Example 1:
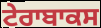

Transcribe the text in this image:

ਟੇਰਾਬਾਕਸ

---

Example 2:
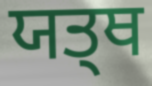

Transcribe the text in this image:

ਯਤ੍ਥ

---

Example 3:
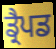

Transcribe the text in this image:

ਡ੍ਰੈਪਡ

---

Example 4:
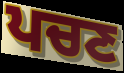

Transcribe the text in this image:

ਪਚਣ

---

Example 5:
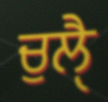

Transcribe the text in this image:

ਚੁਲੈੑ